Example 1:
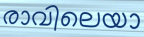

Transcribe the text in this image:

രാവിലെയാ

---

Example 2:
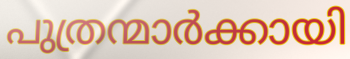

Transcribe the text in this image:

പുത്രന്മാർക്കായി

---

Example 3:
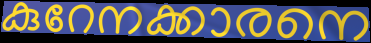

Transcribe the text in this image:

കുറേനക്കാരനെ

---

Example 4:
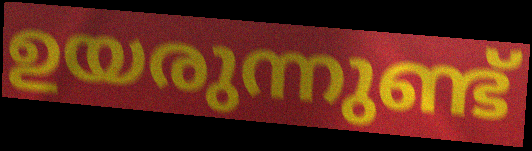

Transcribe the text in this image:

ഉയരുന്നുണ്ട്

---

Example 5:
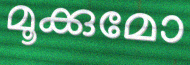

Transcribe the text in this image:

മൂക്കുമോ